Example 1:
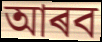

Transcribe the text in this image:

আৰব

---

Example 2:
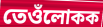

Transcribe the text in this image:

তেওঁলোকক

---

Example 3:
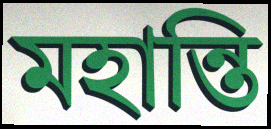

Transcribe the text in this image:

মহান্তি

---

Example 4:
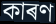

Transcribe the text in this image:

কাৰণ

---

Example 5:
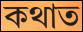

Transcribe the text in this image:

কথাত